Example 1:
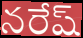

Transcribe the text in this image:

నరేష్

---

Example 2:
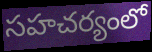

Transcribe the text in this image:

సహచర్యంలో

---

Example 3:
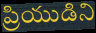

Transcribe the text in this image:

ప్రియుడిని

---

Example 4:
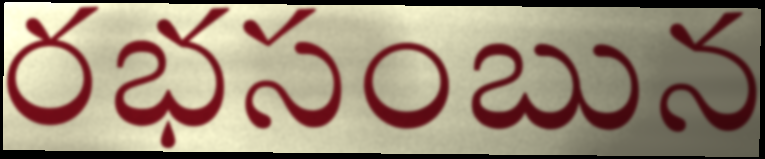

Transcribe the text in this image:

రభసంబున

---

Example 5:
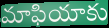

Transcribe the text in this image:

మాఫియాకు